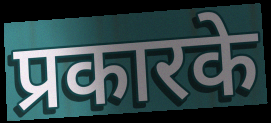
प्रकारके